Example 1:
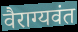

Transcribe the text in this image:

वैराग्यवंत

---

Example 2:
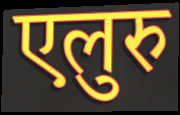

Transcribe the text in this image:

एलुरु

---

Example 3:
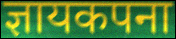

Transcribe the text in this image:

ज्ञायकपना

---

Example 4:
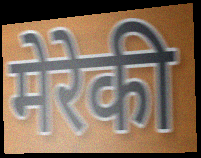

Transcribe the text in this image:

मेरेकी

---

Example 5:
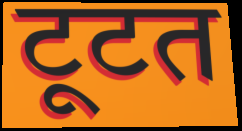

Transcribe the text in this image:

टूटत